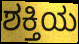
ಶಕ್ತಿಯ